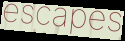
escapes